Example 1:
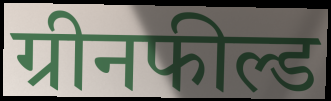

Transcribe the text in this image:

ग्रीनफील्‍ड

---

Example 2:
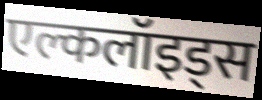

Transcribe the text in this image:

एल्कलॉइड्स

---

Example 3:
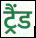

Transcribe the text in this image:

ट्रैंड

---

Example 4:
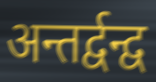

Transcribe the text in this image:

अन्तर्द्वन्द्व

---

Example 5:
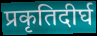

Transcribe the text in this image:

प्रकृतिदीर्घ